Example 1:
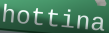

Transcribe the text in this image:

hottina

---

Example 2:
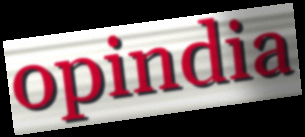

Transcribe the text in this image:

opindia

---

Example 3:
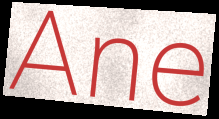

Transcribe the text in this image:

Ane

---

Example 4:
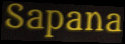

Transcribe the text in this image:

Sapana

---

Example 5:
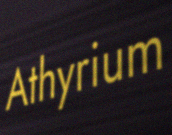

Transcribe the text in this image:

Athyrium